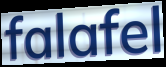
falafel